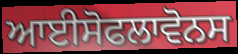
ਆਈਸੋਫਲਾਵੋਨਸ